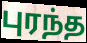
புரந்த